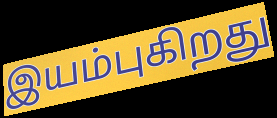
இயம்புகிறது